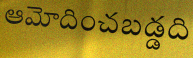
ఆమోదించబడ్డది